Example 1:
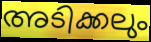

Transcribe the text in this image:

അടിക്കലും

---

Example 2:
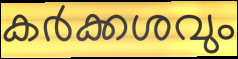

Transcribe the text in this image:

കർക്കശവും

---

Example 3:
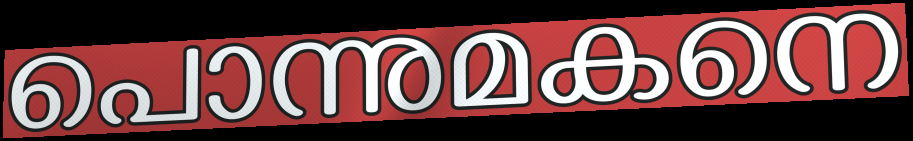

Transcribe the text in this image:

പൊന്നുമകനെ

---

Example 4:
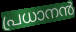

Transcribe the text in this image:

പ്രധാനൻ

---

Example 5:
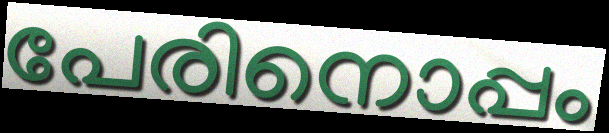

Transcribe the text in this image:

പേരിനൊപ്പം